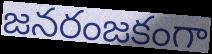
జనరంజకంగా